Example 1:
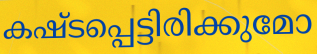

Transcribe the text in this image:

കഷ്ടപ്പെട്ടിരിക്കുമോ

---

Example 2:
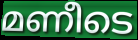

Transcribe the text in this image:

മണീടെ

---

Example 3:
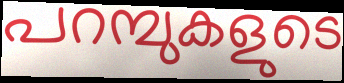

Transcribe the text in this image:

പറമ്പുകളുടെ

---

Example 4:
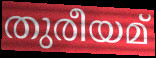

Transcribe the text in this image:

തുരീയമ്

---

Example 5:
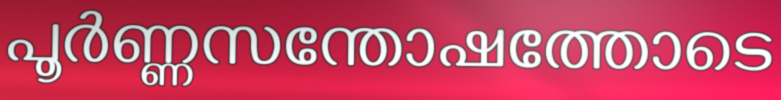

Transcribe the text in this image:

പൂർണ്ണസന്തോഷത്തോടെ